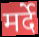
मर्दे